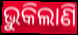
ଭୁକିଲାଣି